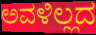
ಅವಳಿಲ್ಲದ